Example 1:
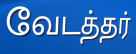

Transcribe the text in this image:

வேடத்தர்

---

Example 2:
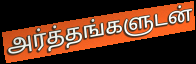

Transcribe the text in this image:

அர்த்தங்களுடன்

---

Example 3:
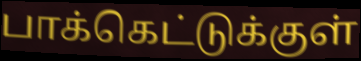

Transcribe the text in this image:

பாக்கெட்டுக்குள்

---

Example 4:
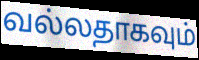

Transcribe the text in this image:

வல்லதாகவும்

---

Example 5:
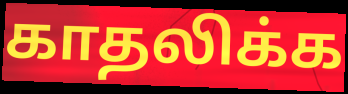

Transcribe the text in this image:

காதலிக்க